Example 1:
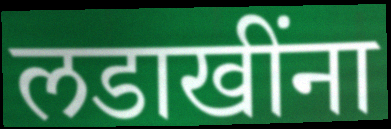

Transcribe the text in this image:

लडाखींना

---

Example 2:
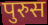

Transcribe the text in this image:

पुरुस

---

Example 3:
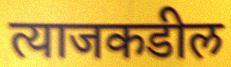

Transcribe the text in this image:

त्याजकडील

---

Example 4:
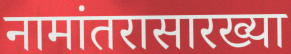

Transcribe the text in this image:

नामांतरासारख्या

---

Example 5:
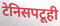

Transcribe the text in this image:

टेनिसपटूही